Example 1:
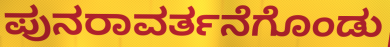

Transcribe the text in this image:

ಪುನರಾವರ್ತನೆಗೊಂಡು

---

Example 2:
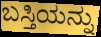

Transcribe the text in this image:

ಬಸ್ತಿಯನ್ನು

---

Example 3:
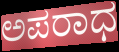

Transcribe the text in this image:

ಅಪರಾಧ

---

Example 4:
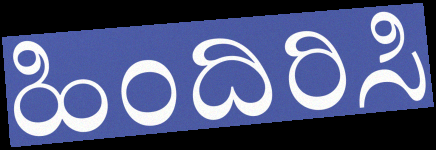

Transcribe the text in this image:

ಹಿಂದಿರಿಸಿ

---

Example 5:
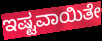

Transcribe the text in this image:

ಇಷ್ಟವಾಯಿತೇ